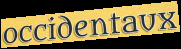
occidentaux